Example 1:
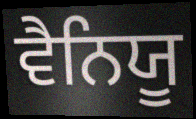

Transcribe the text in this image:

ਵੈਨਿਯੂ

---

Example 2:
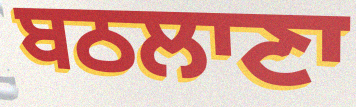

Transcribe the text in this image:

ਬਠਲਾਣਾ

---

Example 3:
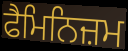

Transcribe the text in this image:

ਫੈਮਿਨਿਜ਼ਮ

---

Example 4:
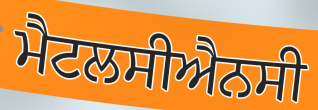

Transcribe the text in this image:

ਮੈਟਲਸੀਐਨਸੀ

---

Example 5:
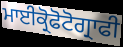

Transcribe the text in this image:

ਮਾਈਕ੍ਰੋਫੋਟੋਗ੍ਰਾਫੀ